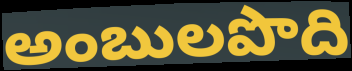
అంబులపొది